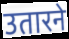
उतारने